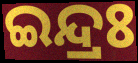
ଇନ୍ଦ୍ରଃ